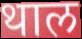
थाल